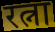
रत्ना